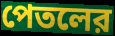
পেতলের